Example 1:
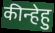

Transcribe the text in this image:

कीन्हेहु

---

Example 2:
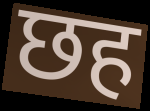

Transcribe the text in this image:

छह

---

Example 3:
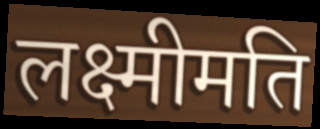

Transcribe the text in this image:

लक्ष्मीमति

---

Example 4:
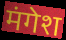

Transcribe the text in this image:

मंगेश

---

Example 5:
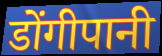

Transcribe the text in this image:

डोंगीपानी